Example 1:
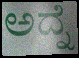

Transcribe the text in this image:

ಅದ್ನೆ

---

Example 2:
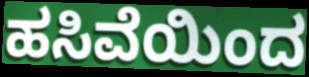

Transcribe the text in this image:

ಹಸಿವೆಯಿಂದ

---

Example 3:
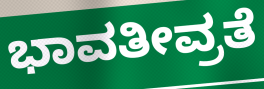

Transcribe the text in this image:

ಭಾವತೀವ್ರತೆ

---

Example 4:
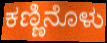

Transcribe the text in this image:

ಕಣ್ಣಿನೊಳು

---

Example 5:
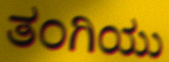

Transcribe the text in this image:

ತಂಗಿಯು